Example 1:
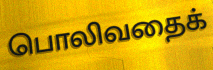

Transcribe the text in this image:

பொலிவதைக்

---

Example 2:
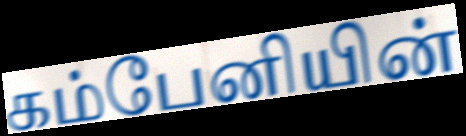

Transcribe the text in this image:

கம்பேனியின்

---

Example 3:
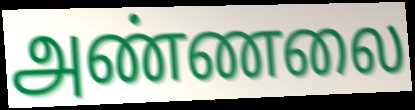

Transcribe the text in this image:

அண்ணலை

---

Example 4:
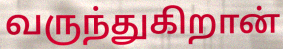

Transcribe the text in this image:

வருந்துகிறான்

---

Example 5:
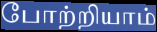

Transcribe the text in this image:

போற்றியாம்